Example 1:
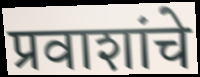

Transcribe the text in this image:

प्रवाशांचे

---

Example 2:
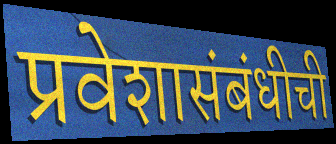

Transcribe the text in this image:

प्रवेशासंबंधीची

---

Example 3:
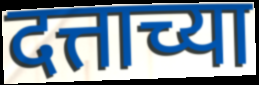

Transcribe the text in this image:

दत्ताच्या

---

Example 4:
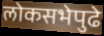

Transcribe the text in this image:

लोकसभेपुढे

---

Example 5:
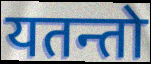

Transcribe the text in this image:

यतन्तो